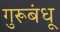
गुरूबंधू